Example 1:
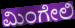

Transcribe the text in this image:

ಮಿಂಗೇಲಿ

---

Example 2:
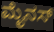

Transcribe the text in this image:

ಮೈನಸ್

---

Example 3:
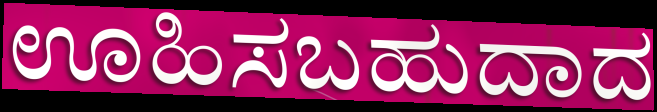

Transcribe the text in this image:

ಊಹಿಸಬಹುದಾದ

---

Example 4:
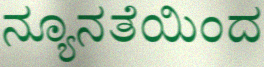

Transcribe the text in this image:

ನ್ಯೂನತೆಯಿಂದ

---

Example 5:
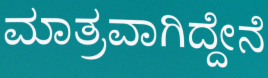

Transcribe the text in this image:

ಮಾತ್ರವಾಗಿದ್ದೇನೆ